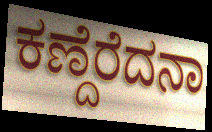
ಕಣ್ದೆರೆದನಾ